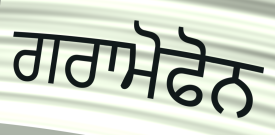
ਗਰਾਮੋਫੋਨ